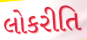
લોકરીતિ